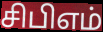
சிபிஎம்